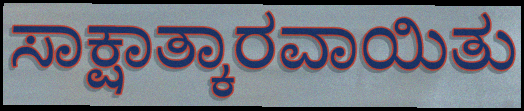
ಸಾಕ್ಷಾತ್ಕಾರವಾಯಿತು